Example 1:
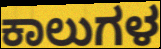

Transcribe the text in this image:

ಕಾಲುಗಳ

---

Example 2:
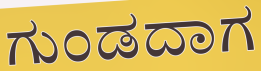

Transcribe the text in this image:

ಗುಂಡದಾಗ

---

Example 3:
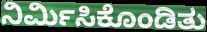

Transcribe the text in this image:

ನಿರ್ಮಿಸಿಕೊಂಡಿತು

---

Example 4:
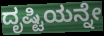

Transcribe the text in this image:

ದೃಷ್ಟಿಯನ್ನೇ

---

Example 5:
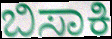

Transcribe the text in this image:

ಬಿಸಾಕಿ